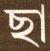
ছা